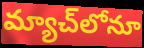
మ్యాచ్‌లోనూ